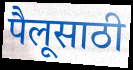
पैलूसाठी